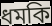
ধমকি